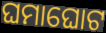
ଘମାଘୋଟ